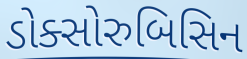
ડોક્સોરુબિસિન